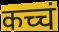
कच्चं